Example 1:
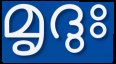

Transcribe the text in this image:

മൃദുഃ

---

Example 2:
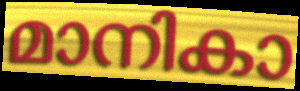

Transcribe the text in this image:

മാനികാ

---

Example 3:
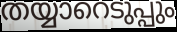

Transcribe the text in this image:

തയ്യാറെടുപ്പും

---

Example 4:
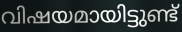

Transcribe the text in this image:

വിഷയമായിട്ടുണ്ട്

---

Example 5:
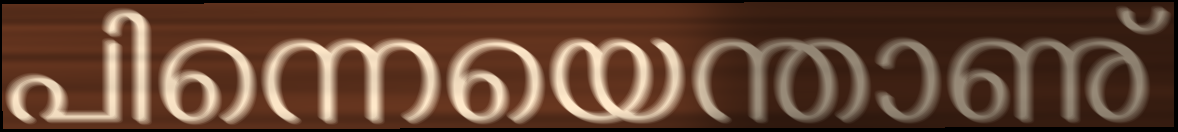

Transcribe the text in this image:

പിന്നെയെന്താണു്